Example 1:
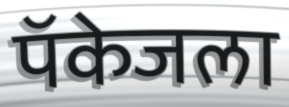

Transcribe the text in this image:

पॅकेजला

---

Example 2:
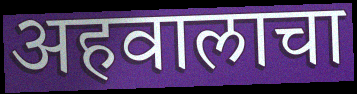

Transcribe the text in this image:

अहवालाचा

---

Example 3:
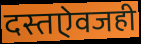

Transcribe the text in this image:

दस्तऐवजही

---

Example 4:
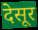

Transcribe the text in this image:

देसूर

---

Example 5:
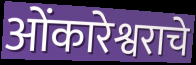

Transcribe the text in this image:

ओंकारेश्वराचे